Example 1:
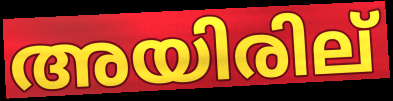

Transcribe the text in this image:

അയിരില്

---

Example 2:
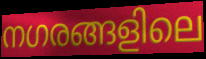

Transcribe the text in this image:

നഗരങ്ങളിലെ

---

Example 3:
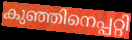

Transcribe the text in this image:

കുഞ്ഞിനെപ്പറ്റി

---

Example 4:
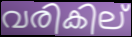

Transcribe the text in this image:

വരികില്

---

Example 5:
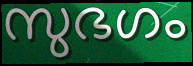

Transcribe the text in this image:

സുഭഗം